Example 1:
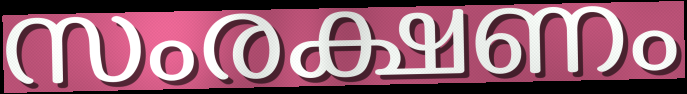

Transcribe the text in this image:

സംരക്ഷണം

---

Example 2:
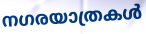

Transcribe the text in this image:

നഗരയാത്രകൾ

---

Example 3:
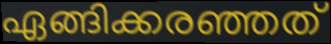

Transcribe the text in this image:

ഏങ്ങിക്കരഞ്ഞത്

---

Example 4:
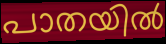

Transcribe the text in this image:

പാതയിൽ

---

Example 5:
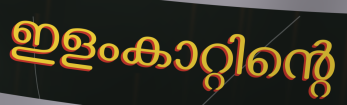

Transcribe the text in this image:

ഇളംകാറ്റിന്റെ